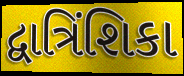
દ્વાત્રિંશિકા